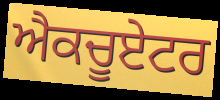
ਐਕਚੂਏਟਰ